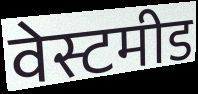
वेस्टमीड